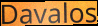
Davalos